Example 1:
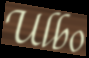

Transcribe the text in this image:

Ulbo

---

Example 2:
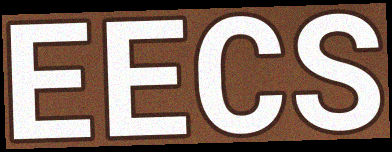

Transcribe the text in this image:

EECS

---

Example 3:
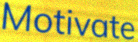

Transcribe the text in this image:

Motivate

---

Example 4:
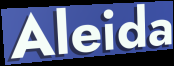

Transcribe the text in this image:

Aleida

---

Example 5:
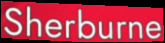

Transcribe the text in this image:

Sherburne